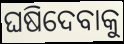
ଘଷିଦେବାକୁ